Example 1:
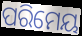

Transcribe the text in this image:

ପରିମେୟ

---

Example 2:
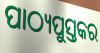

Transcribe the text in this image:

ପାଠ୍ୟପୁସ୍ତକର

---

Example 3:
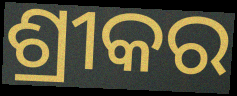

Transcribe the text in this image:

ଶ୍ରୀକର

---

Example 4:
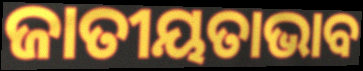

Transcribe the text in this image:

ଜାତୀୟତାଭାବ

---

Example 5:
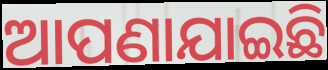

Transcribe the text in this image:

ଆପଣାଯାଇଛି